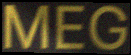
MEG